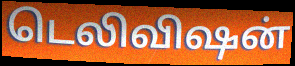
டெலிவிஷன்